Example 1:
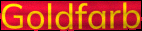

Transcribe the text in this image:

Goldfarb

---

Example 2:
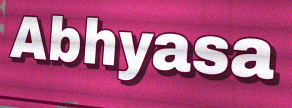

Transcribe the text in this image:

Abhyasa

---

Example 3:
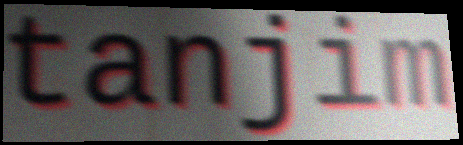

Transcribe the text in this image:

tanjim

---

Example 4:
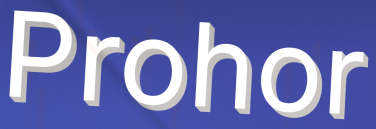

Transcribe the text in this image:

Prohor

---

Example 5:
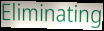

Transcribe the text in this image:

Eliminating